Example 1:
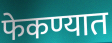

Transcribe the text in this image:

फेकण्यात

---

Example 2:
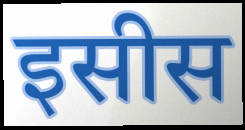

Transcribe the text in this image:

इसीस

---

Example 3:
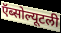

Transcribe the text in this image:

ऍब्सोल्यूटली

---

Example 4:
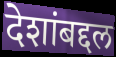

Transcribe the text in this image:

देशांबद्दल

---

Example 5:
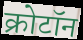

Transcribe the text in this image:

क्रोटॉन